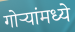
गोऱ्यांमध्ये